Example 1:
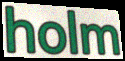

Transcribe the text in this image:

holm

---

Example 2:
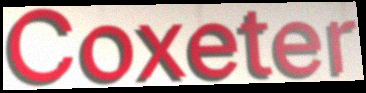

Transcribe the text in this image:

Coxeter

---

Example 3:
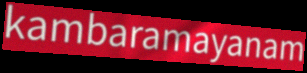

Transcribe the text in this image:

kambaramayanam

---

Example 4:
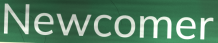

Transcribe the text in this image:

Newcomer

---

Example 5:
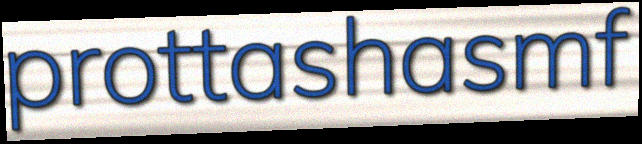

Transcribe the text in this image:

prottashasmf